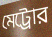
মেট্রোর